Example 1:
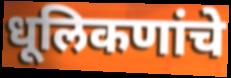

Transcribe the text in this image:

धूलिकणांचे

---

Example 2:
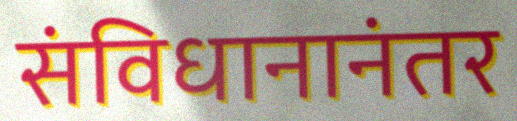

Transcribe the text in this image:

संविधानानंतर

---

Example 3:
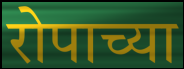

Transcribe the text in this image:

रोपाच्या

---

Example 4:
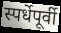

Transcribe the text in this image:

स्पर्धेपूर्वी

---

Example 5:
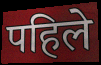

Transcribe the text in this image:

पहिले